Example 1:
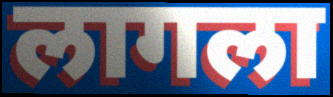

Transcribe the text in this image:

लागला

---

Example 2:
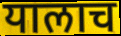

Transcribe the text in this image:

यालाच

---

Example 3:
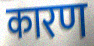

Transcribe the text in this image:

कारण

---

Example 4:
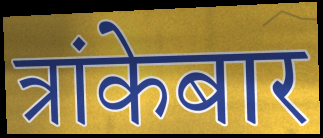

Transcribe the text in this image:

त्रांकेबार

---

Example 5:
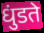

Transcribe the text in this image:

धुंडते